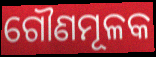
ଗୌଣମୂଳକ